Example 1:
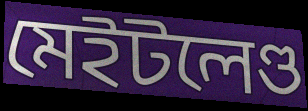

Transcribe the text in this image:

মেইটলেণ্ড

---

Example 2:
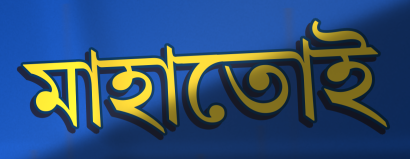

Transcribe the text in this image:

মাহাতোই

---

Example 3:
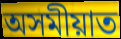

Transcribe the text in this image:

অসমীয়াত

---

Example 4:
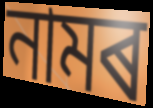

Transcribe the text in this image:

নামৰ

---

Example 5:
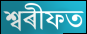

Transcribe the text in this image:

শ্বৰীফত